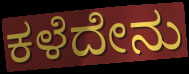
ಕಳೆದೇನು